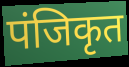
पंजिकृत